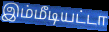
இம்மீடியட்டா